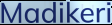
Madikeri